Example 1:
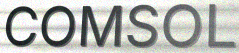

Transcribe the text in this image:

COMSOL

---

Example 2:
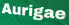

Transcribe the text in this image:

Aurigae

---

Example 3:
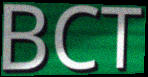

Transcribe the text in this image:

BCT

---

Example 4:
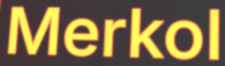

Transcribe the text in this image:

Merkol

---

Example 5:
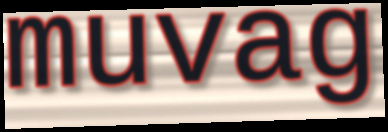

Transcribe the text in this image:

muvag